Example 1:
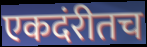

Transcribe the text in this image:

एकदंरीतच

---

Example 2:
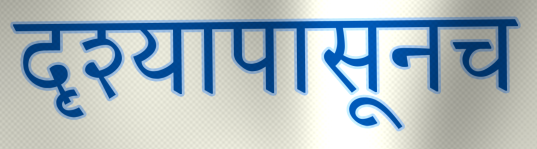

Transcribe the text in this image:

दृश्यापासूनच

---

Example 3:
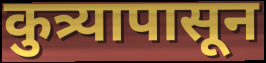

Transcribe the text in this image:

कुत्र्यापासून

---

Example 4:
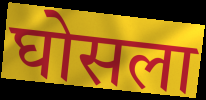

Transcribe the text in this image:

घोसला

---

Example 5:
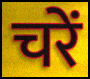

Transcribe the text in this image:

चरें